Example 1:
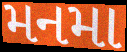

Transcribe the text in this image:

મનમા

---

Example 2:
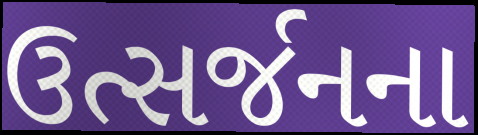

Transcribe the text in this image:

ઉત્સર્જનના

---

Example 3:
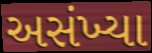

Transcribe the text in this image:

અસંખ્યા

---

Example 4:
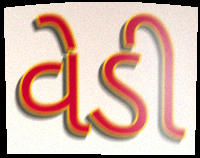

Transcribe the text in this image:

વેડી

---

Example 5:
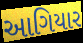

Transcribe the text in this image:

આગિયાર